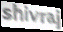
shivraj